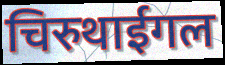
चिरुथाईगल